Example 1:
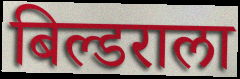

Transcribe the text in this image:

बिल्डराला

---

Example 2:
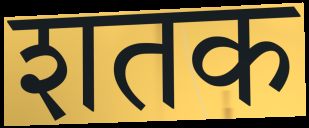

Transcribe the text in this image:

शतक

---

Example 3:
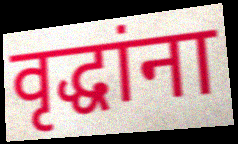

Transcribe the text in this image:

वृद्धांना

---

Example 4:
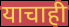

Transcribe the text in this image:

याचाही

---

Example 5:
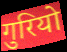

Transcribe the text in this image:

गुरियो